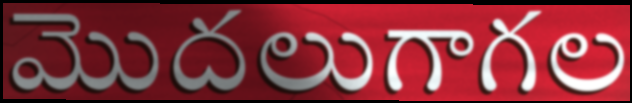
మొదలుగాగల